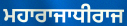
ਮਹਾਰਾਜਾਧੀਰਾਜ